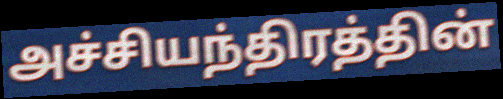
அச்சியந்திரத்தின்